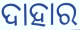
ଦାହାର